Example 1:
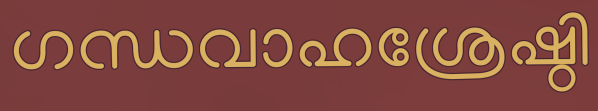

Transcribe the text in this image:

ഗന്ധവാഹശ്രേഷ്ഠി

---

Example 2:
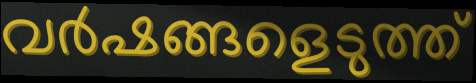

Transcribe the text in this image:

വർഷങ്ങളെടുത്ത്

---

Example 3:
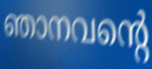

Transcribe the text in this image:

ഞാനവന്റെ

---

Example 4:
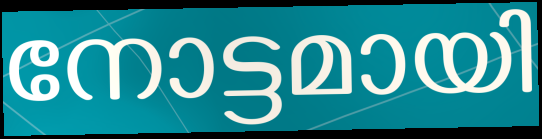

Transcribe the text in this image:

നോട്ടമായി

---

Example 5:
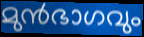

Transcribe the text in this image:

മുൻഭാഗവും